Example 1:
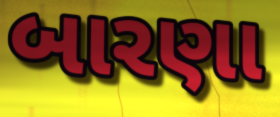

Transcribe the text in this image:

બારણા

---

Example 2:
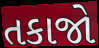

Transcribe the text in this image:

તકાજો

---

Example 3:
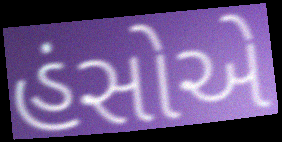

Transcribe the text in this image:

હંસોએ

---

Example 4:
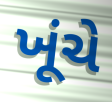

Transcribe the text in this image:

ખૂંચે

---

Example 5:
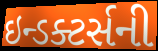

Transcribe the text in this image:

ઇન્ડક્ટર્સની